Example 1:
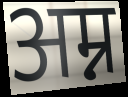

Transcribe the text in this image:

अम्न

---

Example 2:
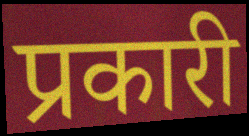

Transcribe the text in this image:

प्रकारी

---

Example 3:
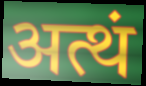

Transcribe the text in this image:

अत्थं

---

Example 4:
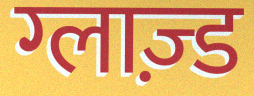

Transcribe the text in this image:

ग्लाज़्ड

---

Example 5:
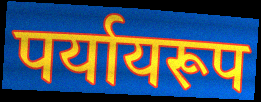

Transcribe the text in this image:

पर्यायरूप